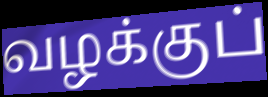
வழக்குப்